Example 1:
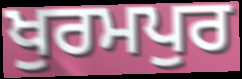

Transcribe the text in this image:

ਖੁਰਮਪੁਰ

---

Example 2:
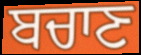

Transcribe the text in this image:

ਬਚਾਣ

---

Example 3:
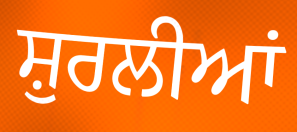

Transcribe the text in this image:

ਸ਼ੁਰਲੀਆਂ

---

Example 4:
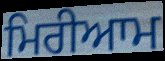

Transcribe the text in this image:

ਮਿਰੀਆਮ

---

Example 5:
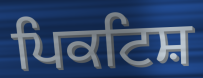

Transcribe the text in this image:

ਪਿਕਟਿਸ਼